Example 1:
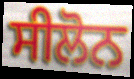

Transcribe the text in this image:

ਸੀਲੋਨ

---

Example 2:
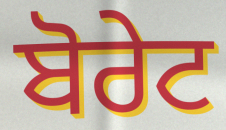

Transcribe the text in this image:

ਬੋਰੇਟ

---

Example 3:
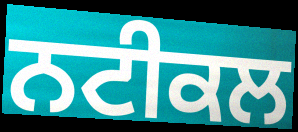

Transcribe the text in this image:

ਨਟੀਕਲ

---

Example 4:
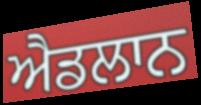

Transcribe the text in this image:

ਐਡਲਾਨ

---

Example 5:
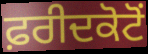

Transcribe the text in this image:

ਫ਼ਰੀਦਕੋਟੋਂ